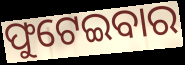
ଫୁଟେଇବାର